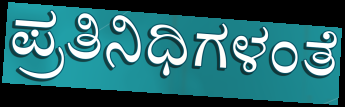
ಪ್ರತಿನಿಧಿಗಳಂತೆ